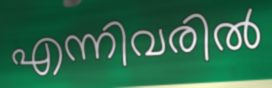
എന്നിവരിൽ